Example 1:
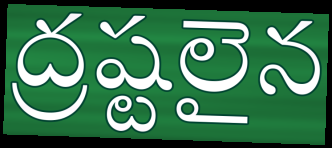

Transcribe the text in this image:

ద్రష్టలైన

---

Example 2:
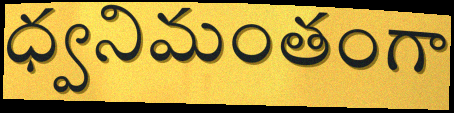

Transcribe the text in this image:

ధ్వనిమంతంగా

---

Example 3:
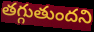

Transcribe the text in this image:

తగ్గుతుందని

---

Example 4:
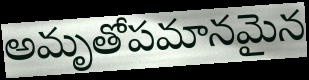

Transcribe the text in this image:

అమృతోపమానమైన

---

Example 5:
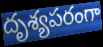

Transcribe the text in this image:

దృశ్యపరంగా